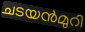
ചടയൻമുറി